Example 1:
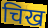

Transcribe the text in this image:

चिख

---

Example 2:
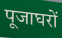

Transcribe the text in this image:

पूजाघरों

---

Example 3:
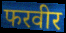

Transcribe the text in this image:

फरवीर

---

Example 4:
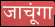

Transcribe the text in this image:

जाचूंगा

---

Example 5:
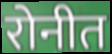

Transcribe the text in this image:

रोनीत